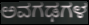
ಅವಗಢಗಳ